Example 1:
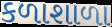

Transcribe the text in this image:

કળાશાળા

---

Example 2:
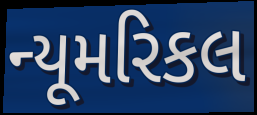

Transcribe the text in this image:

ન્યૂમરિકલ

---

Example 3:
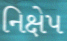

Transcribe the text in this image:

નિક્ષેપ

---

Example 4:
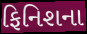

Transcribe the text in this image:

ફિનિશના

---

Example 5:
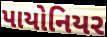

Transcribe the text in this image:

પાયોનિયર